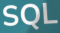
SQL